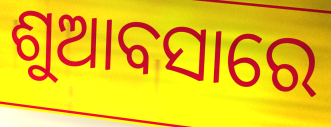
ଶୁଆବସାରେ